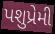
પશુપ્રેમી